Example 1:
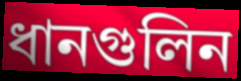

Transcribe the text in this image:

ধানগুলিন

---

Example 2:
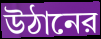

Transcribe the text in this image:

উঠানের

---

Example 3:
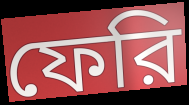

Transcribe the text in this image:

ফেরি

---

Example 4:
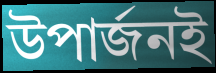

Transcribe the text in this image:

উপার্জনই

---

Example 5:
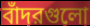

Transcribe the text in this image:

বাঁদরগুলো